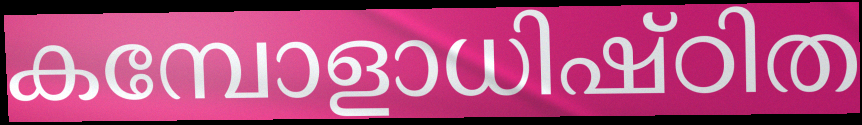
കമ്പോളാധിഷ്ഠിത